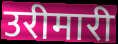
उरीमारी